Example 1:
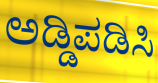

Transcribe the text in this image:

ಅಡ್ಡಿಪಡಿಸಿ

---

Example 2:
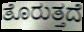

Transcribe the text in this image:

ತೊರುತ್ತದೆ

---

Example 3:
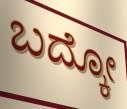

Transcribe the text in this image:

ಬದ್ಕೋ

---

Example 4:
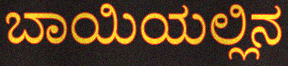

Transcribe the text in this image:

ಬಾಯಿಯಲ್ಲಿನ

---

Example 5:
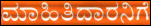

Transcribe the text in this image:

ಮಾಹಿತಿದಾರನಿಗೆ